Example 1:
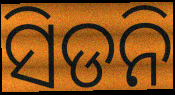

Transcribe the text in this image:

ସିଡନି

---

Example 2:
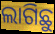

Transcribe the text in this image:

ଲାଗିଛୁ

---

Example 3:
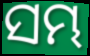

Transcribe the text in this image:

ସମ୍ଭ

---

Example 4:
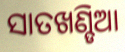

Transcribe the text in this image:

ସାତଖଣ୍ଡିଆ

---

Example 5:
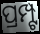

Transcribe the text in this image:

ପ୍ରମ୍ପ୍ଟ